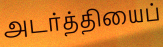
அடர்த்தியைப்